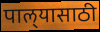
पाल्यासाठी